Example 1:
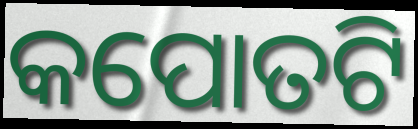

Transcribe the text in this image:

କପୋତଟି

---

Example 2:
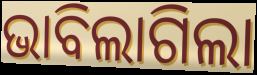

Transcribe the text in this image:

ଭାବିଲାଗିଲା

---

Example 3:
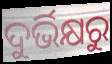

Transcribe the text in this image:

ଦୁର୍ଭିକ୍ଷରୁ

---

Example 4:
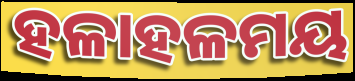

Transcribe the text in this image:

ହଳାହଳମୟ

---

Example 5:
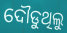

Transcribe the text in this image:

ଦୌଡୁଥିଲୁ